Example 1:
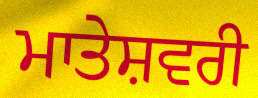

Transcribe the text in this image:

ਮਾਤੇਸ਼ਵਰੀ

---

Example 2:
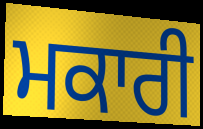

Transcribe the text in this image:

ਮਕਾਰੀ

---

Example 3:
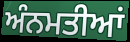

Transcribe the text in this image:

ਅੰਨਮਤੀਆਂ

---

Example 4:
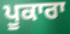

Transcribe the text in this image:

ਪੂਕਾਰਾ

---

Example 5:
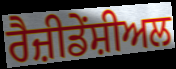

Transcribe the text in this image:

ਰੈਜ਼ੀਡੇਂਸ਼ੀਅਲ